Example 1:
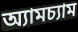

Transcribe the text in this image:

অ্যামচ্যাম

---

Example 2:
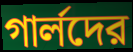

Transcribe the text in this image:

গার্লদের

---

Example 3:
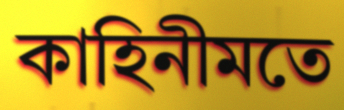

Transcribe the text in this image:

কাহিনীমতে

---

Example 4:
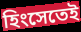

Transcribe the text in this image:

হিংসেতেই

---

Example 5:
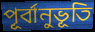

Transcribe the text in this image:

পূর্বানুভূতি